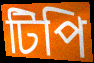
টিপি